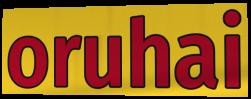
oruhai